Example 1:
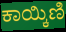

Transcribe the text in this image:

ಕಾಯ್ಕಿಣಿ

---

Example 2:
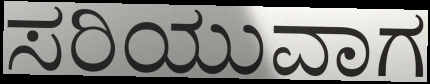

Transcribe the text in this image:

ಸರಿಯುವಾಗ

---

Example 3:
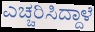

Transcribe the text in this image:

ಎಚ್ಚರಿಸಿದ್ದಾಳೆ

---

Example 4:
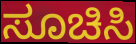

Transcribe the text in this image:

ಸೂಚಿಸಿ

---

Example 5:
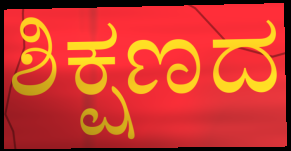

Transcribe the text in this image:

ಶಿಕ್ಷಣದ